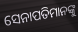
ସେନାପତିମାନଙ୍କୁ